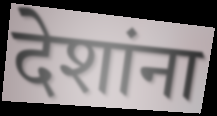
देशांना